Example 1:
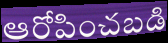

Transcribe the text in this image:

ఆరోపించబడి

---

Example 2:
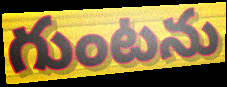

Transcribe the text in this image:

గుంటను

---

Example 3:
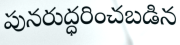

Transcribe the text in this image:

పునరుద్ధరించబడిన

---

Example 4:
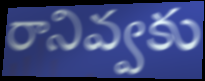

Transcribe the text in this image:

రానివ్వకు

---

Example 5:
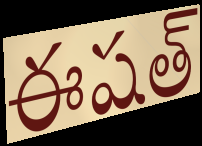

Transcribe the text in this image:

ఈషత్